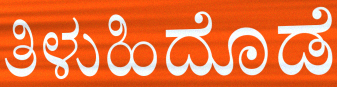
ತಿಳುಹಿದೊಡೆ